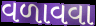
વળાવવા